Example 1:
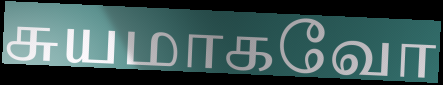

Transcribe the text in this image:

சுயமாகவோ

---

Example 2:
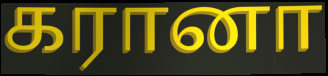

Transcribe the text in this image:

கரானா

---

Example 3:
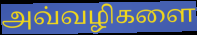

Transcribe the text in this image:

அவ்வழிகளை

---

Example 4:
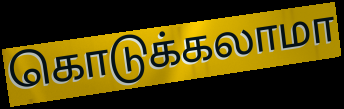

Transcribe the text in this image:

கொடுக்கலாமா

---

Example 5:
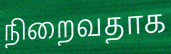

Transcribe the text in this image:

நிறைவதாக